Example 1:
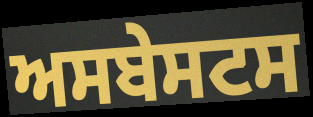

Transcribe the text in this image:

ਅਸਬੇਸਟਸ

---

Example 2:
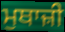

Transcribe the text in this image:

ਮੁਥਾਜ਼ੀ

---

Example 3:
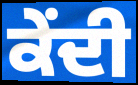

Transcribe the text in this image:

ਕੇਂਦੀ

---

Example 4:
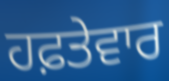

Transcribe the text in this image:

ਹਫ਼ਤੇਵਾਰ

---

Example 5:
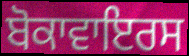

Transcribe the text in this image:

ਬੋਕਾਵਾਇਰਸ